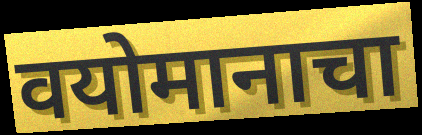
वयोमानाचा